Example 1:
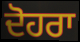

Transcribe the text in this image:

ਦੋਹਰਾ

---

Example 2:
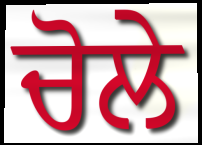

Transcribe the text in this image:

ਚੋਲੇ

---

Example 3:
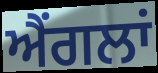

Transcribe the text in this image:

ਐਂਗਲਾਂ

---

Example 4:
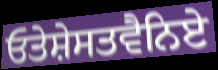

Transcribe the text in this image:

ਓਤੇਸ਼ੇਸਤਵੈਨਿਏ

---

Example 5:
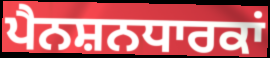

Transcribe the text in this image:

ਪੈਨਸ਼ਨਧਾਰਕਾਂ